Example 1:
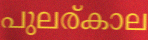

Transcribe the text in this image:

പുലര്കാല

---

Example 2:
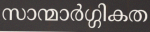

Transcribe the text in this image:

സാന്മാർഗ്ഗികത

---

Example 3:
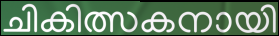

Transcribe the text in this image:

ചികിത്സകനായി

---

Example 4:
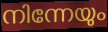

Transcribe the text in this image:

നിന്നേയും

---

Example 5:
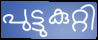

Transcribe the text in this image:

പുട്ടുകുറ്റി